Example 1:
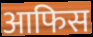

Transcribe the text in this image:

आफिस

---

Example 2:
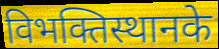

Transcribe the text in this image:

विभक्तिस्थानके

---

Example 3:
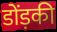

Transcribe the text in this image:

डोंड़की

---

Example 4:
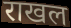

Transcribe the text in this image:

राखल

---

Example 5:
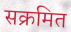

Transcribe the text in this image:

सक्रमित